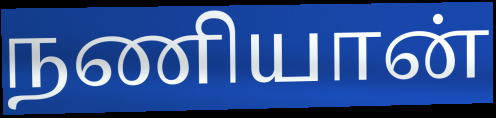
நணியான்